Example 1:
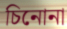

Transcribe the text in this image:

চিনোনা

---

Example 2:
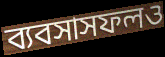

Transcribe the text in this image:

ব্যবসাসফলও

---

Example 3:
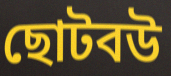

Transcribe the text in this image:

ছোটবউ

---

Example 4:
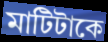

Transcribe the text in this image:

মাটিটাকে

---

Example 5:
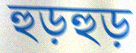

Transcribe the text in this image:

হুড়হুড়